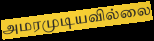
அமரமுடியவில்லை